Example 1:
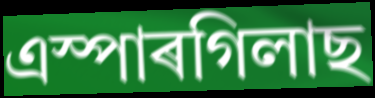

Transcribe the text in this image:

এস্পাৰগিলাছ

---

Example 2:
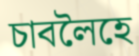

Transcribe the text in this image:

চাবলৈহে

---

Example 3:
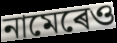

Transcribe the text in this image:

নামেৰেও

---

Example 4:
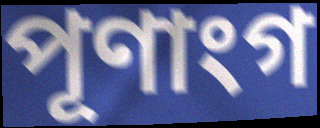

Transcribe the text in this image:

পূণাংগ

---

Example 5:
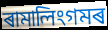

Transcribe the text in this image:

ৰামালিংগমৰ